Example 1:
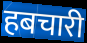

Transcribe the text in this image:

हबचारी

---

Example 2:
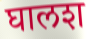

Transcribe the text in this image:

घालश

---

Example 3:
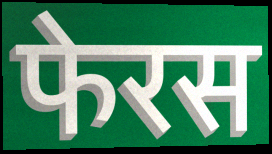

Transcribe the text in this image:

फेरस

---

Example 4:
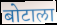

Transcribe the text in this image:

बोटाला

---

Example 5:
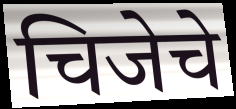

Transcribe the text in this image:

चिजेचे